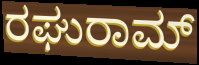
ರಘುರಾಮ್